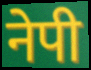
नेपी